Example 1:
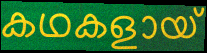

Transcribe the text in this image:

കഥകളായ്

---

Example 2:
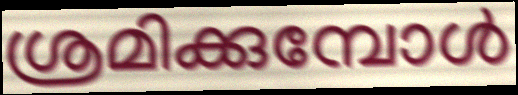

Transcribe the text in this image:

ശ്രമിക്കുമ്പോൾ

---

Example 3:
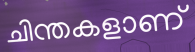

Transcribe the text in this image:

ചിന്തകളാണ്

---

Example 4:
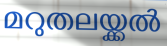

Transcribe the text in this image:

മറുതലയ്ക്കൽ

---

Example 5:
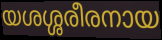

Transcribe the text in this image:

യശശ്ശരീരനായ